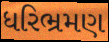
ધરિભ્રમણ